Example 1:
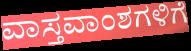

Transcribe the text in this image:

ವಾಸ್ತವಾಂಶಗಳಿಗೆ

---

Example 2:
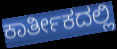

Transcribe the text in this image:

ಕಾರ್ತೀಕದಲ್ಲಿ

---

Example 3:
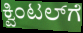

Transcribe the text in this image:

ಕ್ವಿಂಟಲ್‌ಗೆ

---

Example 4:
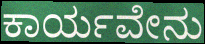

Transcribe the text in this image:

ಕಾರ್ಯವೇನು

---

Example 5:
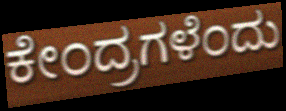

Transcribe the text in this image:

ಕೇಂದ್ರಗಳೆಂದು